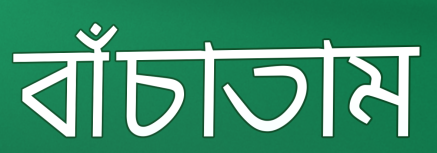
বাঁচাতাম